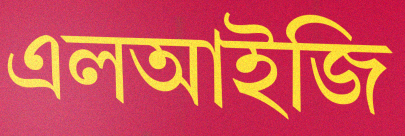
এলআইজি